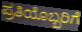
ಪ್ರತಿಯೊಬ್ಬರಿಗೆ